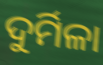
ଦୁର୍ମିଳା